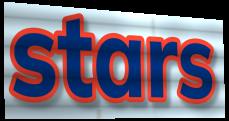
stars